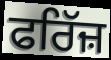
ਫਰਿੱਜ਼